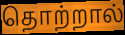
தொற்றால்